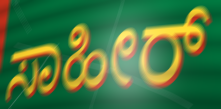
ಸಾಹೀರ್